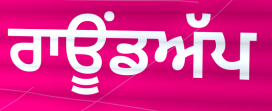
ਰਾਊਂਡਅੱਪ